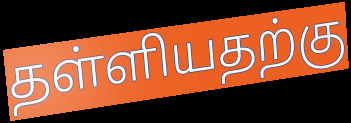
தள்ளியதற்கு